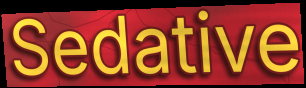
Sedative